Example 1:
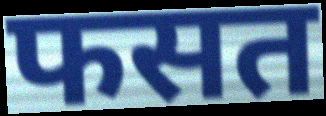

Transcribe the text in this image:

फसत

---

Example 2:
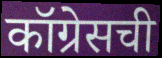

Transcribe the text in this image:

कॉग्रेसची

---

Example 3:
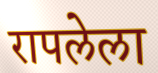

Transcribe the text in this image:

रापलेला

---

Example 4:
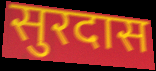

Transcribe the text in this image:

सुरदास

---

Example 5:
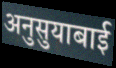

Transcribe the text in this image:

अनुसुयाबाई